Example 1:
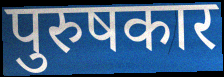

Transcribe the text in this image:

पुरुषकार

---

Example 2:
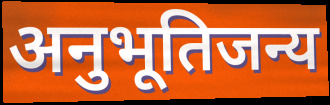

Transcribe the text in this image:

अनुभूतिजन्य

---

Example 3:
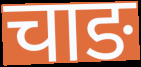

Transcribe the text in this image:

चाङ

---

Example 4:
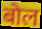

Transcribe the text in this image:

बोल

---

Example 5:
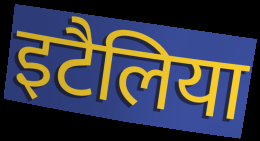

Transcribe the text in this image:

इटैलिया